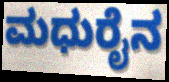
ಮಧುರೈನ